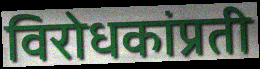
विरोधकांप्रती